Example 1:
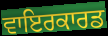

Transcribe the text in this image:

ਵਾਇਰਕਾਰਡ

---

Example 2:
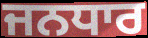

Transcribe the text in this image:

ਜਨਧਾਰ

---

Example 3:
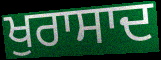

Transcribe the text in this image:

ਖੁਰਾਸਾਦ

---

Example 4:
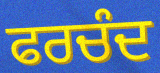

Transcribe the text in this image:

ਫਰਚੰਦ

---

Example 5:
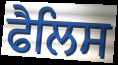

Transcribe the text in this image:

ਫੈਲਿਸ